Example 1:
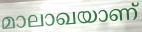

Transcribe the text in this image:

മാലാഖയാണ്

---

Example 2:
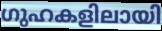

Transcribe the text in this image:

ഗുഹകളിലായി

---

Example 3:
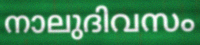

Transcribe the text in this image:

നാലുദിവസം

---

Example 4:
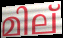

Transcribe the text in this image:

മില്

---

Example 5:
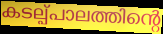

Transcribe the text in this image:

കടല്പ്പാലത്തിന്റെ